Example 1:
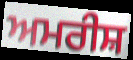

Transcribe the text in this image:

ਅਮਰੀਸ਼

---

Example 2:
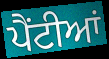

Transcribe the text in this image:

ਪੈਂਟੀਆਂ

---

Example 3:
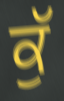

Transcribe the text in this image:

ਕੁੱ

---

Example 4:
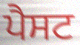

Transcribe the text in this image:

ਪੈਸਟ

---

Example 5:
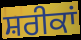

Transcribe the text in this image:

ਸ਼ਰੀਕਾਂ